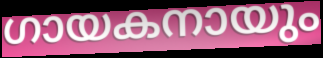
ഗായകനായും